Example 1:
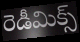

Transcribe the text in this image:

రెడీమిక్స్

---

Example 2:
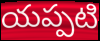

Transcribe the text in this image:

యప్పటి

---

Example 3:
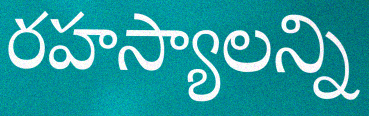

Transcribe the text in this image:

రహస్యాలన్ని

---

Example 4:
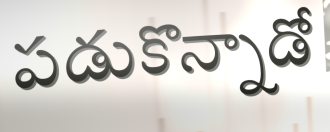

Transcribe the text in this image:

పడుకొన్నాడో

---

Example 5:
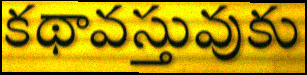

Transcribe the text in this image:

కథావస్తువుకు